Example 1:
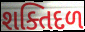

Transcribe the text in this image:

શક્તિદળ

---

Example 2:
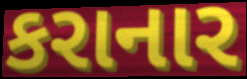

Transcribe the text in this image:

કરાનાર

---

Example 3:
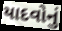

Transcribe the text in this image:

યાદવોનું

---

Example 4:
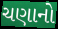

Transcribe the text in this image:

ચણાનો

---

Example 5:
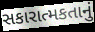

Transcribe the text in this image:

સકારાત્મકતાનું